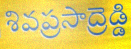
శివప్రసాద్రెడ్డి